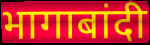
भागाबांदी